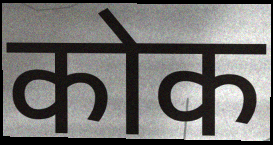
कोक